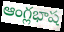
ఆంగ్లభాష